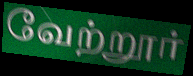
வேற்றூர்